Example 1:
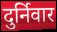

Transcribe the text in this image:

दुर्निवार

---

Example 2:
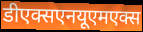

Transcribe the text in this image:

डीएक्सएनयूएमएक्स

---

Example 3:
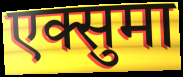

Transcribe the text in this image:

एक्सुमा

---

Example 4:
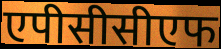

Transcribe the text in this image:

एपीसीसीएफ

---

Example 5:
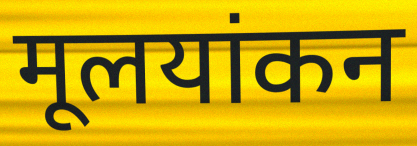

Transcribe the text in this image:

मूलयांकन